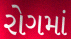
રોગમાં